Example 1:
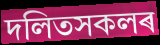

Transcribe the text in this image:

দলিতসকলৰ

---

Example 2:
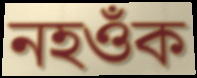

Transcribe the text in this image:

নহওঁক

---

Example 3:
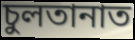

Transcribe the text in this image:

চুলতানাত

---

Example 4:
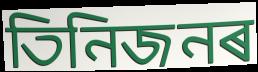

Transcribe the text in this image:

তিনিজনৰ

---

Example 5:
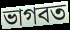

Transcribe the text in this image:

ভাগবত